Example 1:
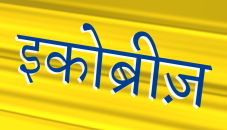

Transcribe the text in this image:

इकोब्रीज़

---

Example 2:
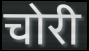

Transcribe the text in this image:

चोरी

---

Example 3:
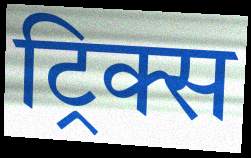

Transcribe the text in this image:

ट्रिक्‍स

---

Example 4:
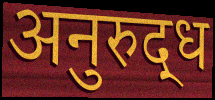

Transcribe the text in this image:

अनुरुद्ध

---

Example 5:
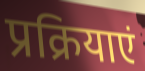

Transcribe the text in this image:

प्रक्रियाएं